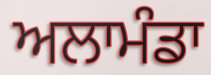
ਅਲਾਮੰਡਾ